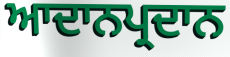
ਆਦਾਨਪ੍ਰਦਾਨ